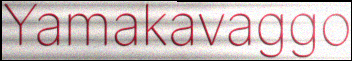
Yamakavaggo